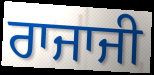
ਰਾਜਾਜੀ